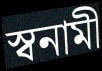
স্বনামী